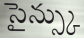
సైన్స్కు